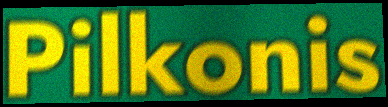
Pilkonis